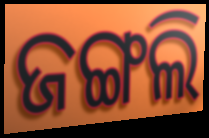
ଜଙ୍ଗଲି